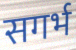
सगर्भ